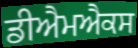
ਡੀਐਮਐਕਸ